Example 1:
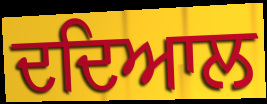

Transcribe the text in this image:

ਦਦਿਆਲ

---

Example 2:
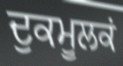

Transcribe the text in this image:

ਦੁਕਮੂਲਕਂ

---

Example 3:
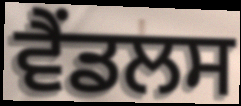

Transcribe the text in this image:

ਵੈਂਡਲਸ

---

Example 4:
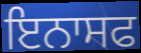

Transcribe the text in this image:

ਇਨਾਸਫ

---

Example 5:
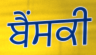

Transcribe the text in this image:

ਬੈਂਸਕੀ